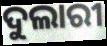
ଦୁଲାରୀ